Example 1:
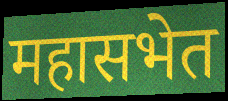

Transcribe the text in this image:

महासभेत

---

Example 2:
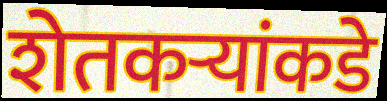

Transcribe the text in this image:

शेतकर्‍यांकडे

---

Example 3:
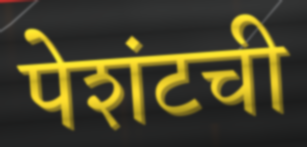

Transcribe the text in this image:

पेशंटची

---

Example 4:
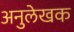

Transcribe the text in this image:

अनुलेखक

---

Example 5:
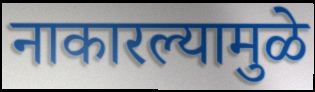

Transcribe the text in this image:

नाकारल्यामुळे